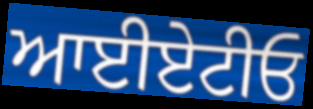
ਆਈਏਟੀਓ